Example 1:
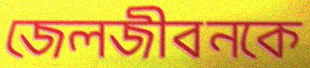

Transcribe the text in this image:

জেলজীবনকে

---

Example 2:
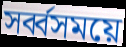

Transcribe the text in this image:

সর্ব্বসময়ে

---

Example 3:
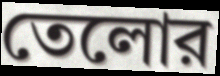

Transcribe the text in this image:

তেলোর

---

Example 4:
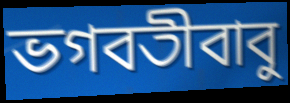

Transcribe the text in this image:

ভগবতীবাবু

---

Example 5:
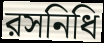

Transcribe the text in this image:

রসনিধি